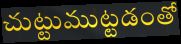
చుట్టుముట్టడంతో